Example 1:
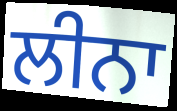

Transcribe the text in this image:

ਲੀਨਾ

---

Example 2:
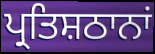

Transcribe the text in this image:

ਪ੍ਰਤਿਸ਼ਠਾਨਾਂ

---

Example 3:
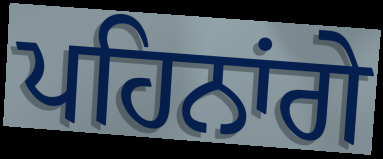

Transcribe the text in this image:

ਪਹਿਨਾਂਗੇ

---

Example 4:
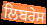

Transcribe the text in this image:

ਲਿਬਰੇਸ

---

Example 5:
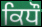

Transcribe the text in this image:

ਕਿਧੌ